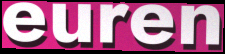
euren